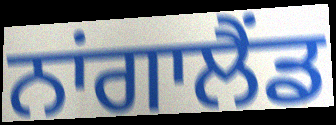
ਨਾਂਗਾਲੈਂਡ